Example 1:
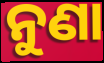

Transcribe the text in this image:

ନୁଣା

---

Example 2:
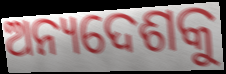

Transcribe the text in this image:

ଅନ୍ୟଦେଶକୁ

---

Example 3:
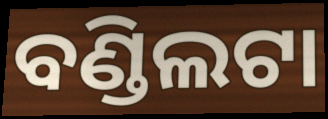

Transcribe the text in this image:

ବଣ୍ଡିଲଟା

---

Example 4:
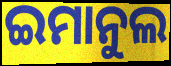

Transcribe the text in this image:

ଇମାନୁଲ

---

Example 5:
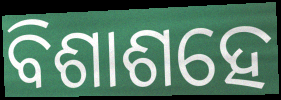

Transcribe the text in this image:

ବିଶାଶହେ